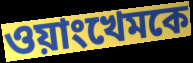
ওয়াংখেমকে